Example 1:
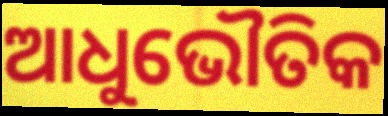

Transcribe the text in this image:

ଆଧୁଭୌତିକ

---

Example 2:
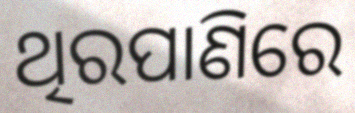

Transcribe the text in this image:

ଥିରପାଣିରେ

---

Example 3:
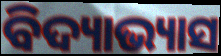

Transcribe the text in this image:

ବିଦ୍ୟାଭ୍ୟାସ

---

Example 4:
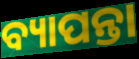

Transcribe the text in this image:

ବ୍ୟାପନ୍ତା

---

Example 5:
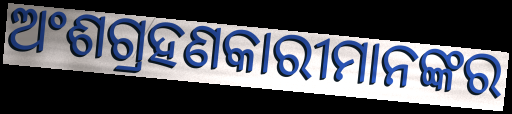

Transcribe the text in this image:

ଅଂଶଗ୍ରହଣକାରୀମାନଙ୍କର